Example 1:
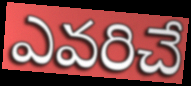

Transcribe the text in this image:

ఎవరిచే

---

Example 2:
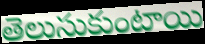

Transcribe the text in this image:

తెలుసుకుంటాయి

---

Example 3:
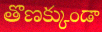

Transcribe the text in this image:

తొణక్కుండా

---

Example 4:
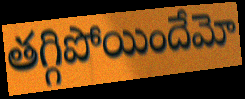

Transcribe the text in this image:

తగ్గిపోయిందేమో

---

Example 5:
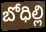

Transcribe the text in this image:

బోధిల్లి